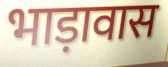
भाड़ावास